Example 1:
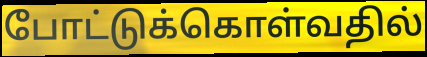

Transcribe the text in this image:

போட்டுக்கொள்வதில்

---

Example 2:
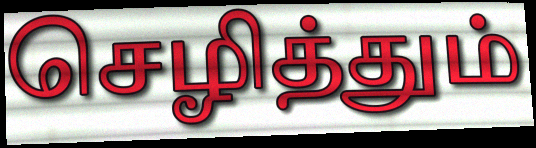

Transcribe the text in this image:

செழித்தும்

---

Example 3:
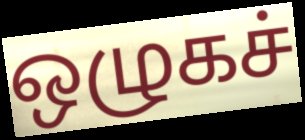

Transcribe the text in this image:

ஒழுகச்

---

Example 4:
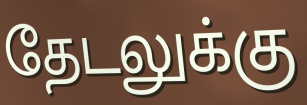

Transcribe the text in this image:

தேடலுக்கு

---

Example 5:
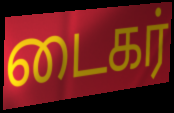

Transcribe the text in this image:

டைகர்